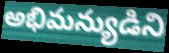
అభిమన్యుడిని